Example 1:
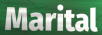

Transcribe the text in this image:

Marital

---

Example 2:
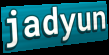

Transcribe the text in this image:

jadyun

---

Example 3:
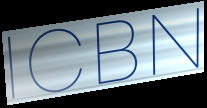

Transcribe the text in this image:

ICBN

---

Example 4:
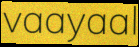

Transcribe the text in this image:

vaayaal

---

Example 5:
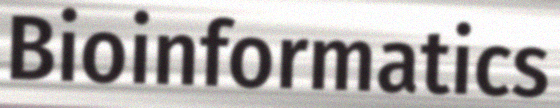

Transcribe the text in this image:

Bioinformatics